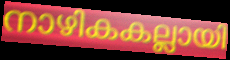
നാഴികകല്ലായി